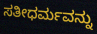
ಸತೀಧರ್ಮವನ್ನು